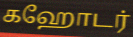
கஹோடர்